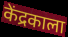
केंद्रकाला